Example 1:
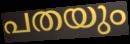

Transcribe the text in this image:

പതയും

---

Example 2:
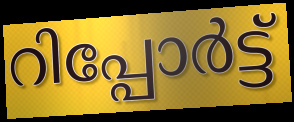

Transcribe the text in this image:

റിപ്പോർട്ട്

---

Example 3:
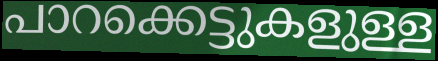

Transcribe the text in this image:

പാറക്കെട്ടുകളുള്ള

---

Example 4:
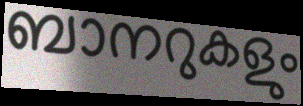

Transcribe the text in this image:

ബാനറുകളും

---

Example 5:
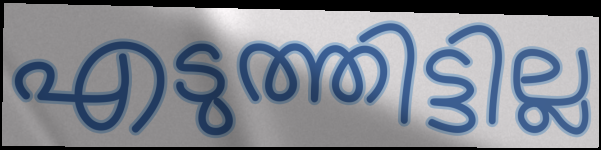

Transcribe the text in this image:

എടുത്തിട്ടില്ല